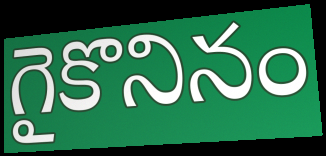
గైకొనినం